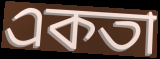
একতা